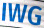
IWG